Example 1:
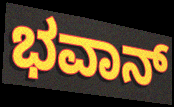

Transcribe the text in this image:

ಭವಾನ್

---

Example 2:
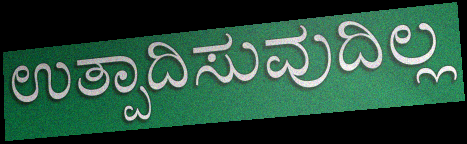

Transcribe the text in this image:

ಉತ್ಪಾದಿಸುವುದಿಲ್ಲ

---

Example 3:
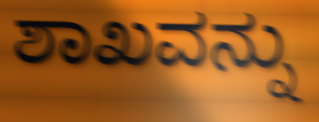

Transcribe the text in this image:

ಶಾಖವನ್ನು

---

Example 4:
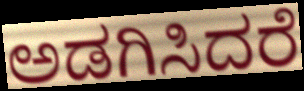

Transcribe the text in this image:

ಅಡಗಿಸಿದರೆ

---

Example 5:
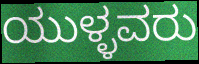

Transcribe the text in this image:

ಯುಳ್ಳವರು